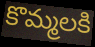
కొమ్మలకి